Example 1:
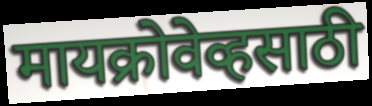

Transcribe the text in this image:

मायक्रोवेव्हसाठी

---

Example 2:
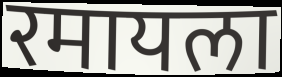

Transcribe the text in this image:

रमायला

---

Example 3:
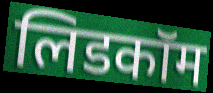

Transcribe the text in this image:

लिडकॉम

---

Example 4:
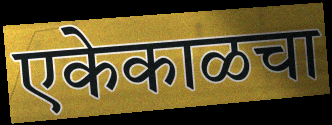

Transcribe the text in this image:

एकेकाळचा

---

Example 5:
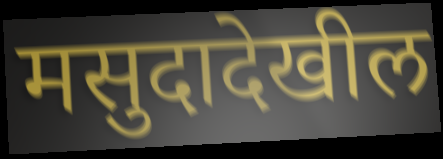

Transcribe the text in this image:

मसुदादेखील